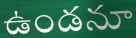
ఉండనూ